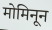
मोमिनून